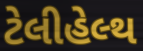
ટેલીહેલ્થ